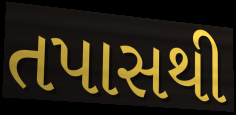
તપાસથી